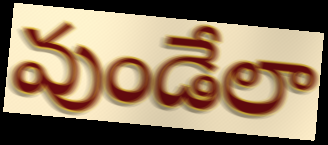
వుండేలా